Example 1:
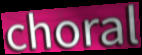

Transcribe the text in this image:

choral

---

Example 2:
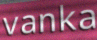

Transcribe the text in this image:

vanka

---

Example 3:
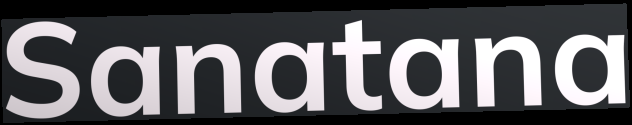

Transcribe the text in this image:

Sanatana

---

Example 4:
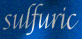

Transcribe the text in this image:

sulfuric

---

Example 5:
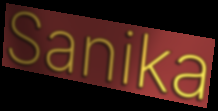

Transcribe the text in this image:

Sanika